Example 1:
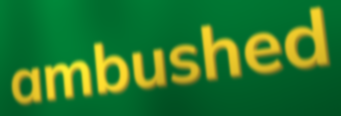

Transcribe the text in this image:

ambushed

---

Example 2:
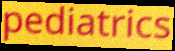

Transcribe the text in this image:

pediatrics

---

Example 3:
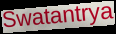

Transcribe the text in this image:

Swatantrya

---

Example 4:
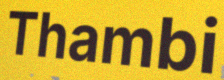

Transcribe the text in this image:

Thambi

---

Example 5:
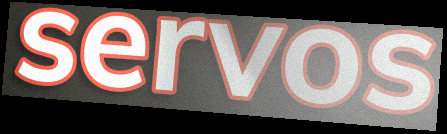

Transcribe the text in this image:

servos